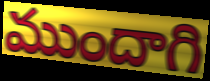
ముందాగి